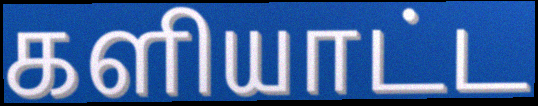
களியாட்ட